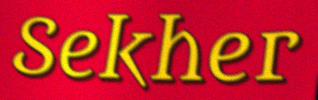
Sekher